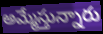
అమ్మేస్తున్నారు